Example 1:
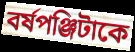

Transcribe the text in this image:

বর্ষপঞ্জিটাকে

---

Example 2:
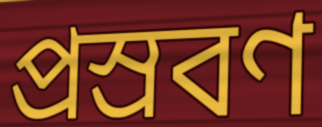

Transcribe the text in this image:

প্রস্রবণ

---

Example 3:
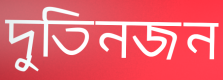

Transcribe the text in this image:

দুতিনজন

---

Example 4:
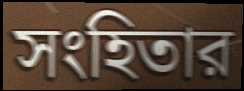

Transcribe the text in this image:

সংহিতার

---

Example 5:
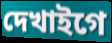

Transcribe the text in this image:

দেখাইগে